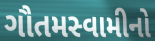
ગૌતમસ્વામીનો